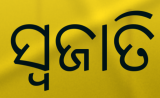
ସ୍ବଜାତି